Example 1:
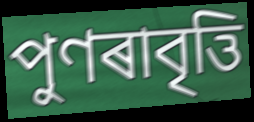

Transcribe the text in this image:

পুণৰাবৃত্তি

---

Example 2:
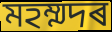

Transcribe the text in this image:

মহম্মদৰ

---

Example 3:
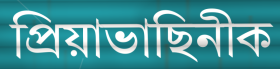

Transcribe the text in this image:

প্ৰিয়াভাছিনীক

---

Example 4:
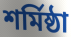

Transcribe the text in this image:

শৰ্মিষ্ঠা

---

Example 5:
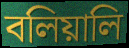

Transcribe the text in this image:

বলিয়ালি